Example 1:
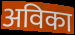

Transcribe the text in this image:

अविका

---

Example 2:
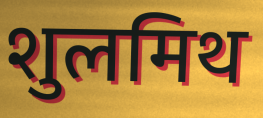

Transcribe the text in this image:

शुलमिथ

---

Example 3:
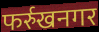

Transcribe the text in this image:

फर्रुखनगर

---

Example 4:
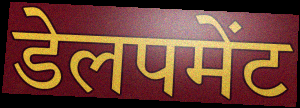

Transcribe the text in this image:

डेलपमेंट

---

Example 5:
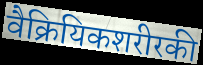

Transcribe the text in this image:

वैक्रियिकशरीरकी